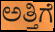
ಅತ್ತಿಗೆ